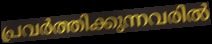
പ്രവർത്തിക്കുന്നവരിൽ